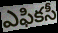
ఎఫికసీ